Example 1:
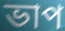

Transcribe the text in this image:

ভাপ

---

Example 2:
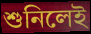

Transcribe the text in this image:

শুনিলেই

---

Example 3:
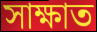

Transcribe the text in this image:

সাক্ষাত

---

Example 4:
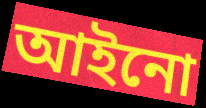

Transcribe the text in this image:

আইনো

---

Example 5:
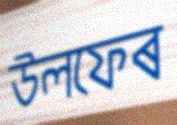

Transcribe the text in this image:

উলফেৰ